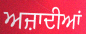
ਅਜ਼ਾਦੀਆਂ